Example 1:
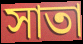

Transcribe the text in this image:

সাতা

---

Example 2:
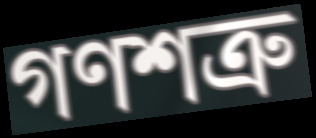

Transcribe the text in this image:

গণশত্রু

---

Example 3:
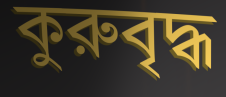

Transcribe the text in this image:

কুরুবৃদ্ধ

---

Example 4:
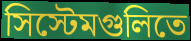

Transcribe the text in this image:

সিস্টেমগুলিতে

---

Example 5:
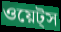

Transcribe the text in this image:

ওয়েট্স